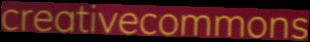
creativecommons